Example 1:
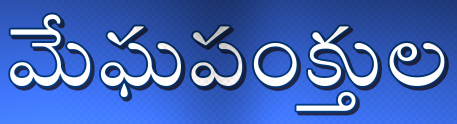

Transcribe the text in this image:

మేఘపంక్తుల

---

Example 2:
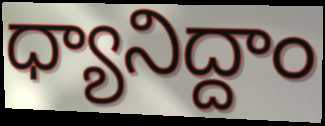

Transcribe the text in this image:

ధ్యానిద్దాం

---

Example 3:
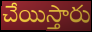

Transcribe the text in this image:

చేయిస్తారు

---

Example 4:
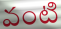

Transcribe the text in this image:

వంటి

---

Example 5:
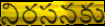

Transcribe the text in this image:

నిరసనకు